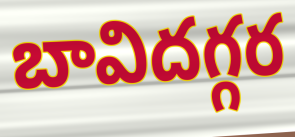
బావిదగ్గర